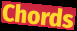
Chords